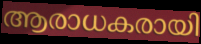
ആരാധകരായി